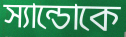
স্যান্ডোকে